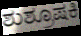
ಶುಶ್ರೂಷಕಿ